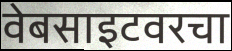
वेबसाइटवरचा